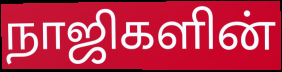
நாஜிகளின்